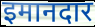
इमानदार